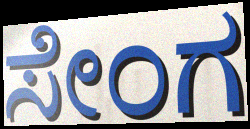
ಸೇಂಗ